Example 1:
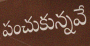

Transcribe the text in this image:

పంచుకున్నవే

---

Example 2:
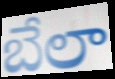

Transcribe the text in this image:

బేలా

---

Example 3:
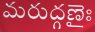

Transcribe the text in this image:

మరుద్గణైః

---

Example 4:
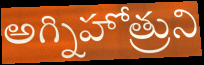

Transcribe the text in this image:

అగ్నిహోత్రుని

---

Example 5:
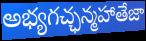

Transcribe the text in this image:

అభ్యగచ్ఛన్మహాతేజా